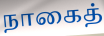
நாகைத்